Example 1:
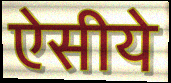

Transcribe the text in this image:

ऐसीये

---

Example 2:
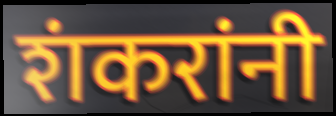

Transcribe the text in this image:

शंकरांनी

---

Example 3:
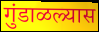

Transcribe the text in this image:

गुंडाळल्यास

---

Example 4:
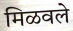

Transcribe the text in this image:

मिळवले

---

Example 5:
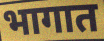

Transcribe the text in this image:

भागात